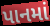
પાનમાં